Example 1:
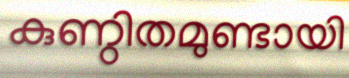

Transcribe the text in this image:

കുണ്ഠിതമുണ്ടായി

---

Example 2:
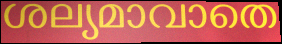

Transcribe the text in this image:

ശല്യമാവാതെ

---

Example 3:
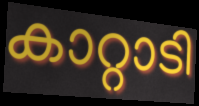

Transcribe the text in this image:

കാറ്റാടി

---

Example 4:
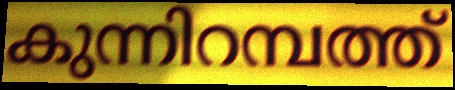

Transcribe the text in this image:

കുന്നിറമ്പത്ത്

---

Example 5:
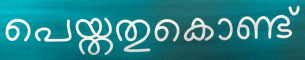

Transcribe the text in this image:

പെയ്തതുകൊണ്ട്